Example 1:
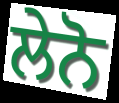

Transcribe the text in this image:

ਲੇਨੋ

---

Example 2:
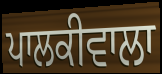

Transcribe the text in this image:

ਪਾਲਕੀਵਾਲਾ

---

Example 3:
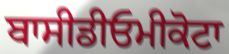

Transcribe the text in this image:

ਬਾਸੀਡੀਓਮੀਕੋਟਾ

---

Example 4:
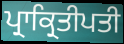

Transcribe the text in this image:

ਪ੍ਰਾਕ੍ਰਿਤੀਪਤੀ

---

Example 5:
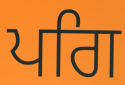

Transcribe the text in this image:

ਪਗਿ